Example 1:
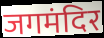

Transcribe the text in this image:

जगमंदिर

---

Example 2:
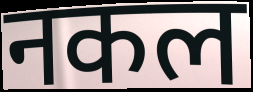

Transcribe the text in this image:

नकल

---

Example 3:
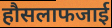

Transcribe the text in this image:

हौसलाफजाई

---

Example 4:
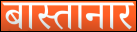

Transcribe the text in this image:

बास्तानार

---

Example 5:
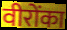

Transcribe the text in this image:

वीरोंका